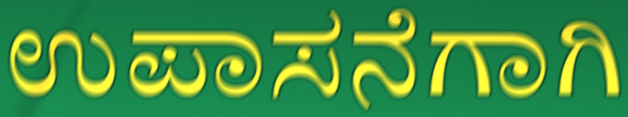
ಉಪಾಸನೆಗಾಗಿ